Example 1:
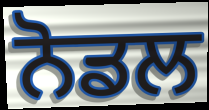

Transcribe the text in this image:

ਨੋਡਲ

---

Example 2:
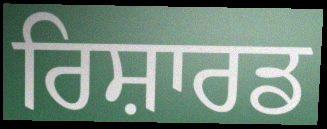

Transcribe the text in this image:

ਰਿਸ਼ਾਰਡ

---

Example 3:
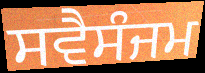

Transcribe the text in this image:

ਸਵੈਸੰਜਮ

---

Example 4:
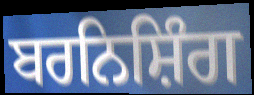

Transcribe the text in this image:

ਬਰਨਿਸ਼ਿੰਗ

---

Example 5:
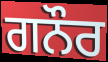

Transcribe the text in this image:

ਗਨੌਰ